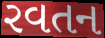
રવતન